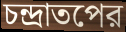
চন্দ্রাতপের